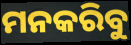
ମନକରିବୁ